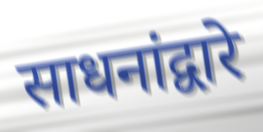
साधनांद्वारे